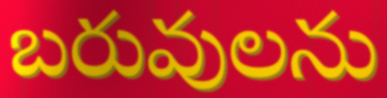
బరువులను